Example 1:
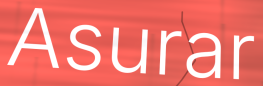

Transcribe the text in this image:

Asurar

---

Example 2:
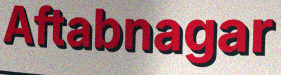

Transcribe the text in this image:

Aftabnagar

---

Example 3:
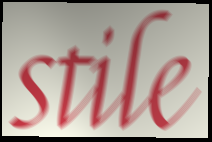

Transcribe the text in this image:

stile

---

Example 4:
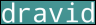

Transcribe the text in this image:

dravid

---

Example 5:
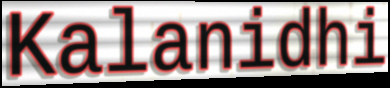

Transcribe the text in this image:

Kalanidhi